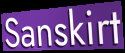
Sanskirt